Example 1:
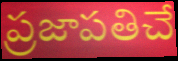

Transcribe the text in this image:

ప్రజాపతిచే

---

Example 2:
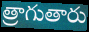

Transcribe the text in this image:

త్రాగుతారు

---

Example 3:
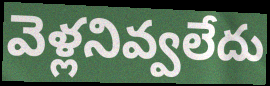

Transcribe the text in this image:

వెళ్లనివ్వలేదు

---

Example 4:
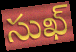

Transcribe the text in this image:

సుఖ్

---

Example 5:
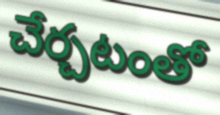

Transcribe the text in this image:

చేర్చటంతో